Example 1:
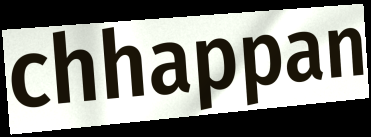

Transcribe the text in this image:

chhappan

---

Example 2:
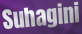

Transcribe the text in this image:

Suhagini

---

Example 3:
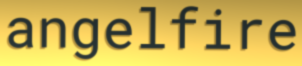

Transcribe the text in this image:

angelfire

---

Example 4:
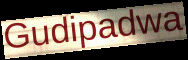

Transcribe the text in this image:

Gudipadwa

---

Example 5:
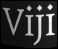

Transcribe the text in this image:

Viji